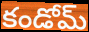
కండోమ్